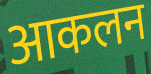
आकलन